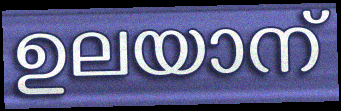
ഉലയാന്